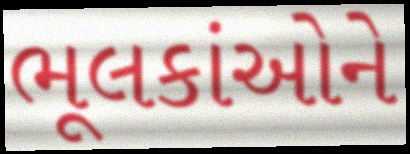
ભૂલકાંઓને